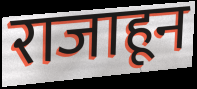
राजाहून